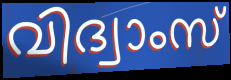
വിദ്വാംസ്